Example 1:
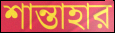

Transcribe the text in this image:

শান্তাহার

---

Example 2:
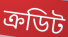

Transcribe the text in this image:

ক্রডিট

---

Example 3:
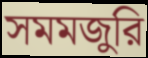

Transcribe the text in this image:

সমমজুরি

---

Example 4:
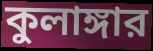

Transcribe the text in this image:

কুলাঙ্গার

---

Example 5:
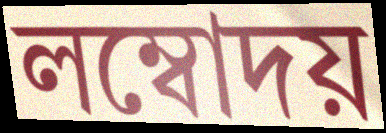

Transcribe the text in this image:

লম্বোদয়